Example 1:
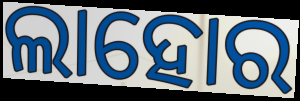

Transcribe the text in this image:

ଲାହୋର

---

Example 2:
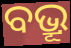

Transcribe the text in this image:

ବଭ୍ରୂ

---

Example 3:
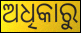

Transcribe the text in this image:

ଅଧିକାରୁ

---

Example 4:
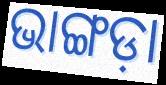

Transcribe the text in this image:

ଭାଙ୍ଗଡ଼ା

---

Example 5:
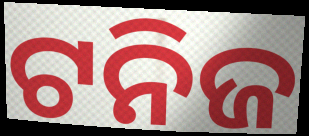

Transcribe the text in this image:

ଟନିଜ